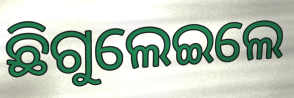
ଛିଗୁଲେଇଲେ